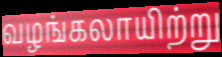
வழங்கலாயிற்று